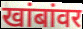
खांबांवर